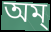
অম্